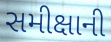
સમીક્ષાની